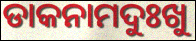
ଡାକନାମଦୁଃଖୁ